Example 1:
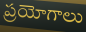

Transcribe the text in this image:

ప్రయోగాలు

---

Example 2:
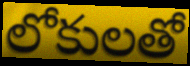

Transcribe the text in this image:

లోకులతో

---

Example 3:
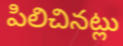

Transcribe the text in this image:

పిలిచినట్లు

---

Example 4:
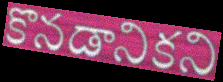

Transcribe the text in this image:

కొనడానికని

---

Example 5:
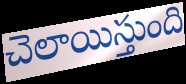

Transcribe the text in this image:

చెలాయిస్తుంది